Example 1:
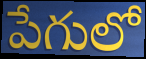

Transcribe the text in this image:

పేగులో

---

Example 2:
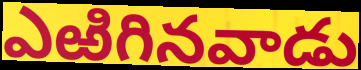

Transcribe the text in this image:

ఎఱిగినవాడు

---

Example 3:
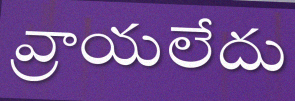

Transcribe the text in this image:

వ్రాయలేదు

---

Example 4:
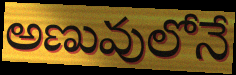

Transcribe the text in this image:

అణువులోనే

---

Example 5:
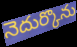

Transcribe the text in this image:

నెదుర్కొను